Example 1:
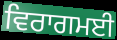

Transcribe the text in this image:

ਵਿਰਾਗਮਈ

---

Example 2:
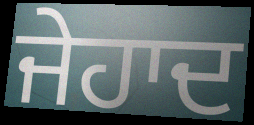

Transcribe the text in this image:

ਜੇਹਾਦ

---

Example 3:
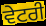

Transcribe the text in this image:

ਵੇਟਰੀ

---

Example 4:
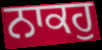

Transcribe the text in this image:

ਨਾਕਹੁ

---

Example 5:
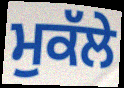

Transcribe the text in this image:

ਮੁਕੱਲੇ